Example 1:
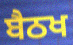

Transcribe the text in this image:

ਬੈਠਖ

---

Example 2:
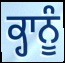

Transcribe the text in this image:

ਕ੍ਹਾਨੂੰ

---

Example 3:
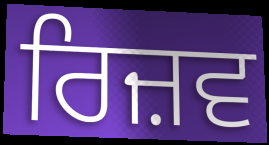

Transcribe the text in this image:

ਰਿਜ਼ਵ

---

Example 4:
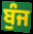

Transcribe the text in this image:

ਬੁੰਜ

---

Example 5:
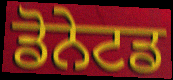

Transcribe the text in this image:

ਡੋਨੇਟਡ